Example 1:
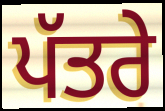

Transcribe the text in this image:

ਪੱਤਰੇ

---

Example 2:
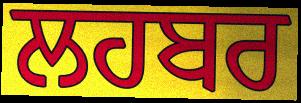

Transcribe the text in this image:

ਲਹਬਰ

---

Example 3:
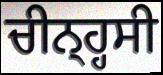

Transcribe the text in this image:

ਚੀਨ੍ਹ੍ਹਸੀ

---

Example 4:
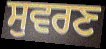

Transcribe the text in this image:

ਸੁਵਰਣ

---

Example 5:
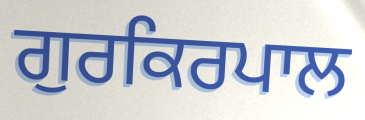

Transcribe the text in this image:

ਗੁਰਕਿਰਪਾਲ